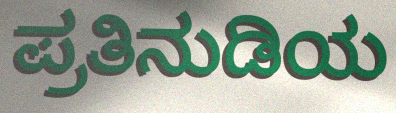
ಪ್ರತಿನುಡಿಯ